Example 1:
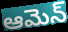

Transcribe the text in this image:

ఆమెన్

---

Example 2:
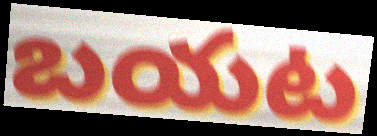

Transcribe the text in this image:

బయట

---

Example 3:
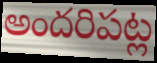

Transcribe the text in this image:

అందరిపట్ల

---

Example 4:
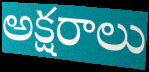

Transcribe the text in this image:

అక్షరాలు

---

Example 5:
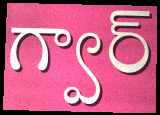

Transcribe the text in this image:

గ్వార్